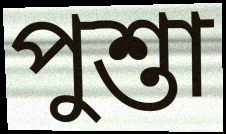
পুশ্তা